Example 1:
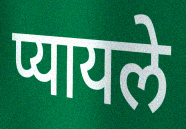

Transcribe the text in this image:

प्यायले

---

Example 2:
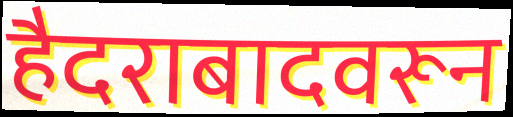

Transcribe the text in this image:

हैदराबादवरून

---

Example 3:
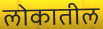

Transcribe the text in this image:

लोकातील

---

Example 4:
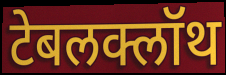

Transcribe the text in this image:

टेबलक्लॉथ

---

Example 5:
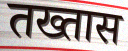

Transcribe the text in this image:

तख्तास